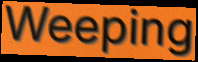
Weeping